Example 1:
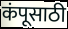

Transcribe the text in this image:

कंपूसाठी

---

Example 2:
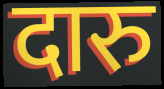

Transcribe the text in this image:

दारु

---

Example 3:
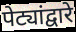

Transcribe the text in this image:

पेट्यांद्वारे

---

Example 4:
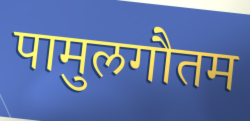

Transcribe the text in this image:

पामुलगौतम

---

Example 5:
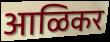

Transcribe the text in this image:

आळिकर